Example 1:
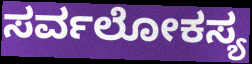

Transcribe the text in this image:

ಸರ್ವಲೋಕಸ್ಯ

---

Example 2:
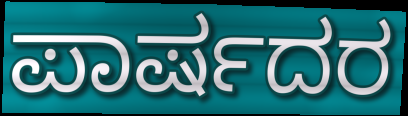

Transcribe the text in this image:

ಪಾರ್ಷದರ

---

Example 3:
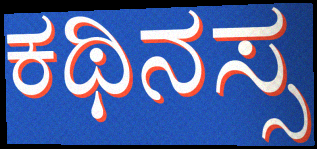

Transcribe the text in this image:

ಕಥಿನಸ್ಸ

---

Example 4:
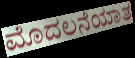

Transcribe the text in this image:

ಮೊದಲನೆಯಾತ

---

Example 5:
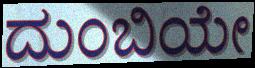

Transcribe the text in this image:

ದುಂಬಿಯೇ